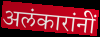
अलंकारांनीं